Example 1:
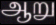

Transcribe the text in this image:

ஆறு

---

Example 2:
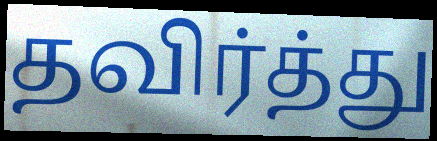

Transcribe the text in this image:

தவிர்த்து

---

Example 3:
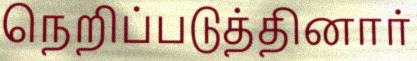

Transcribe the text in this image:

நெறிப்படுத்தினார்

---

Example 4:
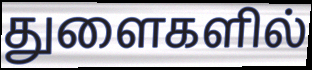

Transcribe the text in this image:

துளைகளில்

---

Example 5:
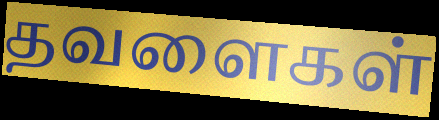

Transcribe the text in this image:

தவளைகள்